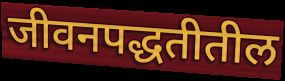
जीवनपद्धतीतील